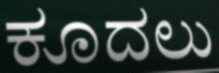
ಕೂದಲು